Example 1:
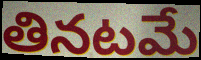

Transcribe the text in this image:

తినటమే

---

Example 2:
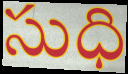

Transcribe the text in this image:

సుధి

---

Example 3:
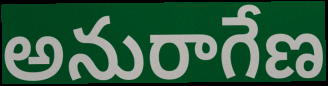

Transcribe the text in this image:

అనురాగేణ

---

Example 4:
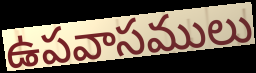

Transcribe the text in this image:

ఉపవాసములు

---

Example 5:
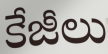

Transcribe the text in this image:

కేజీలు